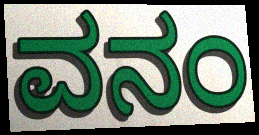
ವನಂ